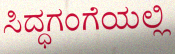
ಸಿದ್ಧಗಂಗೆಯಲ್ಲಿ